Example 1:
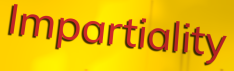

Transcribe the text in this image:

Impartiality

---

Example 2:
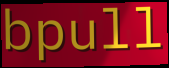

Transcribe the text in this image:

bpull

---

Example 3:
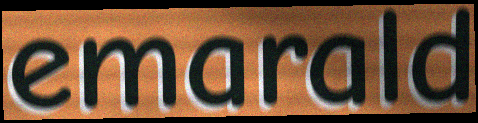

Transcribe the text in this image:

emarald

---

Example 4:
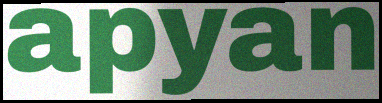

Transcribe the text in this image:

apyan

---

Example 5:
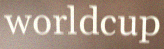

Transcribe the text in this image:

worldcup